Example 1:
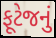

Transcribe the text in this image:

ફૂટેજનું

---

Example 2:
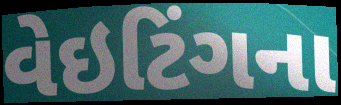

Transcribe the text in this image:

વેઇટિંગના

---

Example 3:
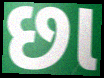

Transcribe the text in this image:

છા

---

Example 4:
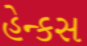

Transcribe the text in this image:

હેન્કસ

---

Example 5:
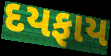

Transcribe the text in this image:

દયફાય